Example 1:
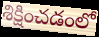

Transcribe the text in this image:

శిక్షించడంలో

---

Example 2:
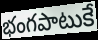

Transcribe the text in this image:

భంగపాటుకే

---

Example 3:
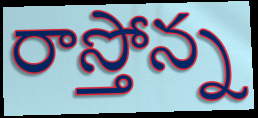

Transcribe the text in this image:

రాస్తోన్న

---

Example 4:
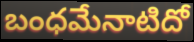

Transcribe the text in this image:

బంధమేనాటిదో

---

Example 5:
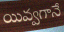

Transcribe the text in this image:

యివ్వగానే